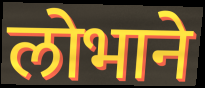
लोभाने